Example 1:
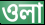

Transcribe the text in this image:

ওলা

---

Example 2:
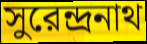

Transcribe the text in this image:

সুরেন্দ্রনাথ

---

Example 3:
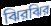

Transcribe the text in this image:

ঝিরঝির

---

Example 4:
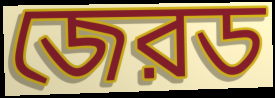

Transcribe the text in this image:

জেরড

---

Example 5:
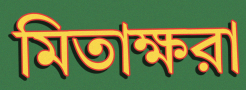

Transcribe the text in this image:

মিতাক্ষরা